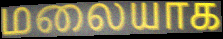
மலையாக